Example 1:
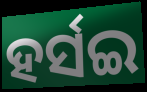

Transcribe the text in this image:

ହର୍ସଇ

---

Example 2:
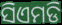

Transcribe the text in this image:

ସିଏମଡି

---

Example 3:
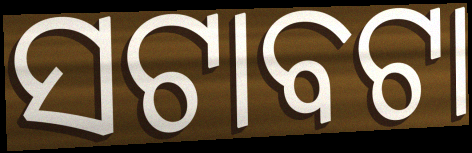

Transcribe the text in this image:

ସଟାବଟା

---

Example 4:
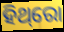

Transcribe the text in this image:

ହିଥ୍‌ରୋ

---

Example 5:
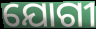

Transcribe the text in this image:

ଯୋଗୀ